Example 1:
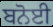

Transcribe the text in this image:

ਬਨੋਈ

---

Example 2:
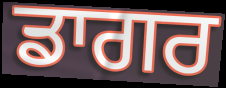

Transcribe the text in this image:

ਡਾਗਰ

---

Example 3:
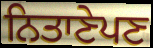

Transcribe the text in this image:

ਨਿਤਾਣੇਪਣ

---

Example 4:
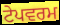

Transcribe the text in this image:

ਟੇਪਵਰਮ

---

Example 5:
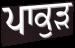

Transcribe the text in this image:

ਪਾਕੁੜ